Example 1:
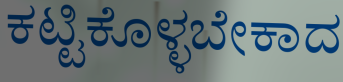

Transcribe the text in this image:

ಕಟ್ಟಿಕೊಳ್ಳಬೇಕಾದ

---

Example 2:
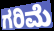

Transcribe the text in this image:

ಗರಿಮೆ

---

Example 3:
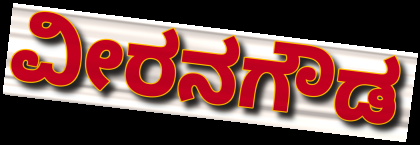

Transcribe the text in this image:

ವೀರನಗೌಡ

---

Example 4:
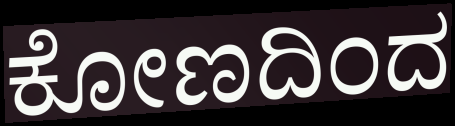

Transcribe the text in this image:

ಕೋಣದಿಂದ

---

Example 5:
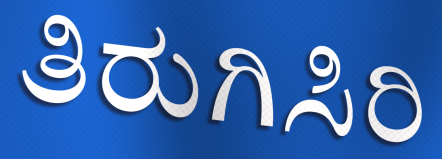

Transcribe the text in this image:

ತಿರುಗಿಸಿರಿ